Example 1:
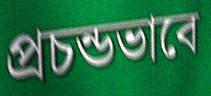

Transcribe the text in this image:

প্রচন্ডভাবে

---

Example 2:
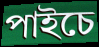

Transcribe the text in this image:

পাইচে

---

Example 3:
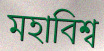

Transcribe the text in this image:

মহাবিশ্ব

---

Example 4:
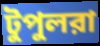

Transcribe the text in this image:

টুপুলরা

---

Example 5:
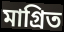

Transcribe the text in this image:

মাগ্রিত